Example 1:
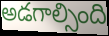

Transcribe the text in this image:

అడగాల్సింది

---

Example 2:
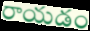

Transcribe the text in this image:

రాయడం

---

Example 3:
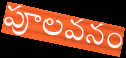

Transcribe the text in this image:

పూలవనం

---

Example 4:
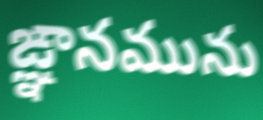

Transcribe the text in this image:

ఙ్ఞానమును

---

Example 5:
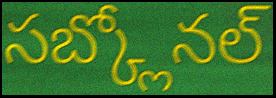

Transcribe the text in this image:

సబ్క్లోనల్